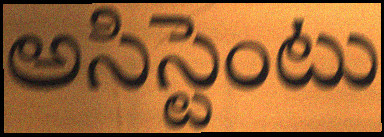
అసిస్టెంటు